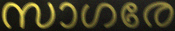
സാഗരേ